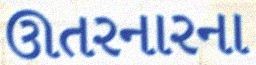
ઊતરનારના